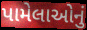
પામેલાઓનું